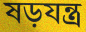
ষড়যন্ত্ৰ